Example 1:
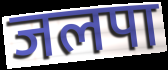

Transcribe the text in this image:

जलपा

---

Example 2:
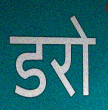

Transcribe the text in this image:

डरो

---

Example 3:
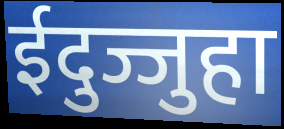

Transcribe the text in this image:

ईदुज्जुहा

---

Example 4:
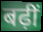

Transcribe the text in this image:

बढ़ीं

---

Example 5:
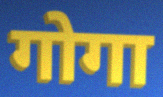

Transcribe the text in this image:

गोगा